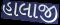
હાલાજી